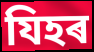
যিহৰ